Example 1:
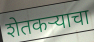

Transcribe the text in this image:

शेतकऱ्याचा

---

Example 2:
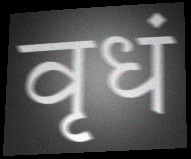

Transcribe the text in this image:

वृधं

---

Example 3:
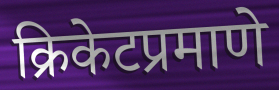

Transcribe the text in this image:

क्रिकेटप्रमाणे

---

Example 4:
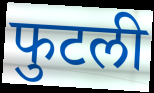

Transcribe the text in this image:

फुटली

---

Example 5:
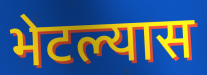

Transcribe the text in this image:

भेटल्यास